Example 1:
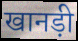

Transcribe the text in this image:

खानड़ी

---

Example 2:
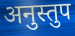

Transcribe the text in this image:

अनुस्तुप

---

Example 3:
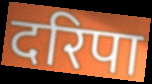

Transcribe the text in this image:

दरिपा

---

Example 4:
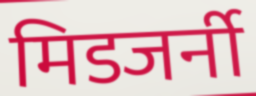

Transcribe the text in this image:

मिडजर्नी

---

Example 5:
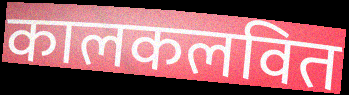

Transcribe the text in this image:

कालकलवित